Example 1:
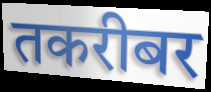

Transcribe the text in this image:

तकरीबर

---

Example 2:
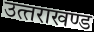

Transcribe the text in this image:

उत्‍तराखण्‍ड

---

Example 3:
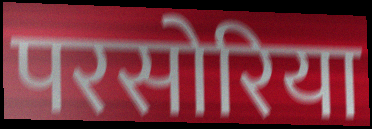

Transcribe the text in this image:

परसोरिया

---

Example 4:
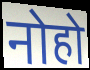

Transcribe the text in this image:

नोहो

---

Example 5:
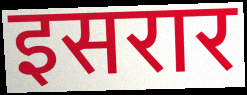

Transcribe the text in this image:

इसरार